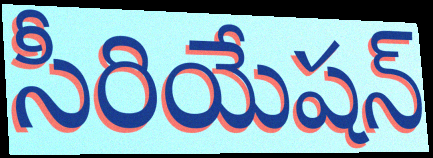
సీరియేషన్